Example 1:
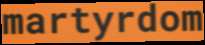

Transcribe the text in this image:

martyrdom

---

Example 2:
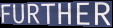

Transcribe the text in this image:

FURTHER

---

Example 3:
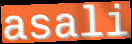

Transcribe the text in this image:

asali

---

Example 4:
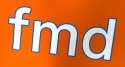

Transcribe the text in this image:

fmd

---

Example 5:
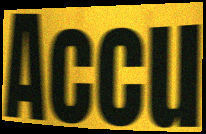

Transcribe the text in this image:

Accu